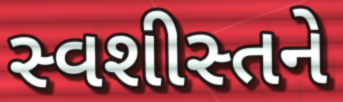
સ્વશીસ્તને